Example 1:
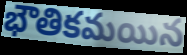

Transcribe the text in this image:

భౌతికమయిన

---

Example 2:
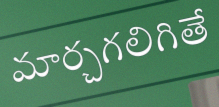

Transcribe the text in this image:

మార్చగలిగితే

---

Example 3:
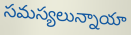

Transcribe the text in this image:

సమస్యలున్నాయా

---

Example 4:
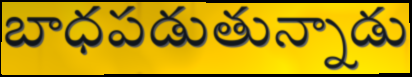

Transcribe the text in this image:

బాధపడుతున్నాడు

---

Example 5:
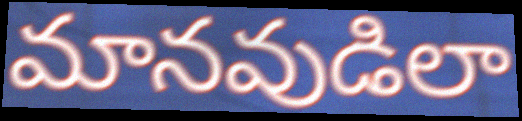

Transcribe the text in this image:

మానవుడిలా